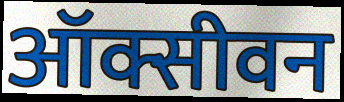
ऑक्सीवन